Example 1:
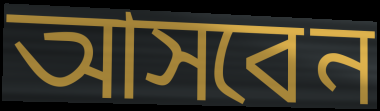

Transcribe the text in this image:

আসবেন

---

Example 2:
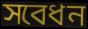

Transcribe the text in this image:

সবেধন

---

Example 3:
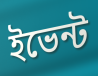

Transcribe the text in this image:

ইভেন্ট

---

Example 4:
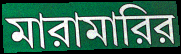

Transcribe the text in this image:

মারামারির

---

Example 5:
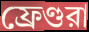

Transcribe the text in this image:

ফ্রেণ্ডরা